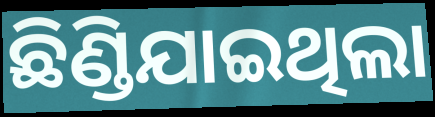
ଛିଣ୍ଡିଯାଇଥିଲା